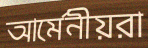
আর্মেনীয়রা